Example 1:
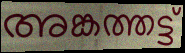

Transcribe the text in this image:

അങ്കത്തട്ട്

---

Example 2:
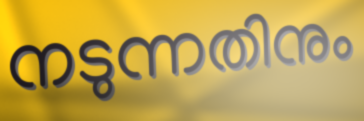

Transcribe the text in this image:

നടുന്നതിനും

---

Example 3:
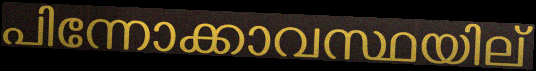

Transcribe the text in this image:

പിന്നോക്കാവസ്ഥയില്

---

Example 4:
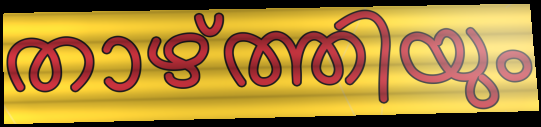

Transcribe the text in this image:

താഴ്ത്തിയും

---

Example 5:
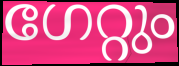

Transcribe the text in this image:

ഗേറ്റും